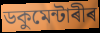
ডকুমেন্টাৰীৰ